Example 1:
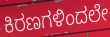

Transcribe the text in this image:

ಕಿರಣಗಳಿಂದಲೇ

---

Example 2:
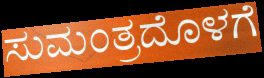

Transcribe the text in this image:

ಸುಮಂತ್ರದೊಳಗೆ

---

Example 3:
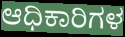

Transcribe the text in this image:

ಆಧಿಕಾರಿಗಳ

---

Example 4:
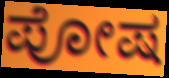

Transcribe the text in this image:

ಪೋಷ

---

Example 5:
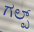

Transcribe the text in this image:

ಗಲ್ಪ್